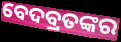
ବେଦବ୍ରତଙ୍କର